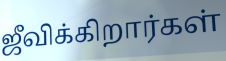
ஜீவிக்கிறார்கள்